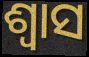
ଶ୍ୱାସ